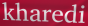
kharedi